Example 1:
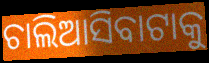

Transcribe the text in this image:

ଚାଲିଆସିବାଟାକୁ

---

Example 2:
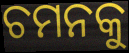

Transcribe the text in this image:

ଚମନକୁ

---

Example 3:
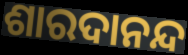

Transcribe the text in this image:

ଶାରଦାନନ୍ଦ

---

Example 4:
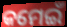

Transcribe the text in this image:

କମେଇଁ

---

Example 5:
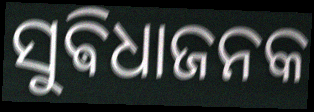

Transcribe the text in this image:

ସୁଵିଧାଜନକ